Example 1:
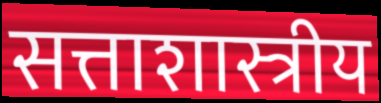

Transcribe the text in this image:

सत्ताशास्त्रीय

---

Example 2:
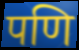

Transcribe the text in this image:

पणि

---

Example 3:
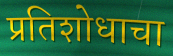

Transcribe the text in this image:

प्रतिशोधाचा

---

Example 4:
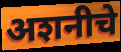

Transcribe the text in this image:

अशनीचे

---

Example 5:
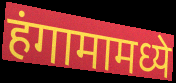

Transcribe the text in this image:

हंगामामध्ये